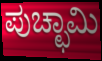
ಪುಚ್ಛಾಮಿ